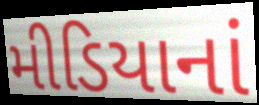
મીડિયાનાં